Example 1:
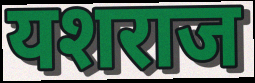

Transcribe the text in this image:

यशराज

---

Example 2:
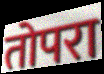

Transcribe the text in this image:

तोपरा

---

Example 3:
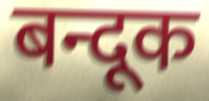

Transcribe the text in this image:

बन्दूक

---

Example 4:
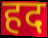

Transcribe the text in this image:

हद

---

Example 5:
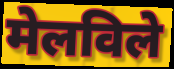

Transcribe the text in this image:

मेलविले